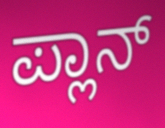
ಪ್ಲಾನ್